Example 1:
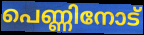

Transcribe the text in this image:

പെണ്ണിനോട്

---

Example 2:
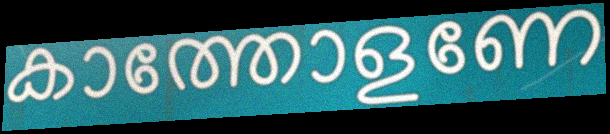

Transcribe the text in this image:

കാത്തോളണേ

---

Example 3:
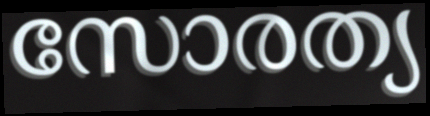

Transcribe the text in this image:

സോരത്യ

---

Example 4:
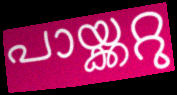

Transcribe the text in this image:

പായ്ക്കറ്റു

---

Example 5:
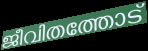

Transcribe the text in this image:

ജീവിതത്തോട്